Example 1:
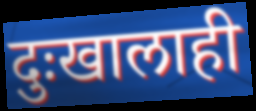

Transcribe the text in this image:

दुःखालाही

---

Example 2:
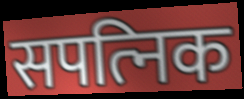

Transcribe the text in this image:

सपत्‍निक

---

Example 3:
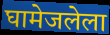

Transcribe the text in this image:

घामेजलेला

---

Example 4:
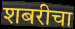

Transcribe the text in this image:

शबरीचा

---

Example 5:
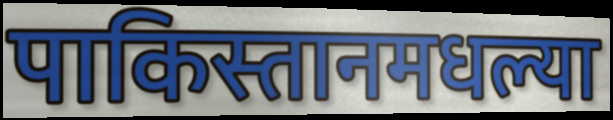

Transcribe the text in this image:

पाकिस्तानमधल्या